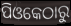
ପିଓକେଠାରୁ